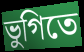
ভুগিতে